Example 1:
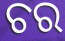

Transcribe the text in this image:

ଚର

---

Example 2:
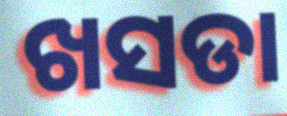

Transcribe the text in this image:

ଖସଡା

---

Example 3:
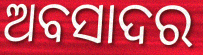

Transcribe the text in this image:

ଅବସାଦର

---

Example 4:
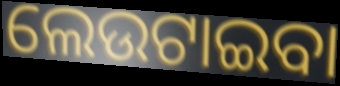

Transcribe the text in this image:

ଲେଉଟାଇବା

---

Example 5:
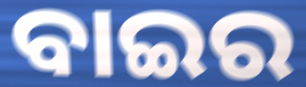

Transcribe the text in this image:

ବାଇର